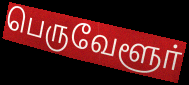
பெருவேளூர்